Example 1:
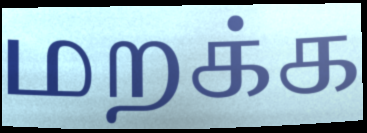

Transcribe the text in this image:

மறக்க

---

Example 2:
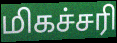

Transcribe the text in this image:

மிகச்சரி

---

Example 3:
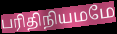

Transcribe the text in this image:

பரிதிநியமமே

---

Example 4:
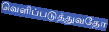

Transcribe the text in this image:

வெளிப்படுத்துவதோ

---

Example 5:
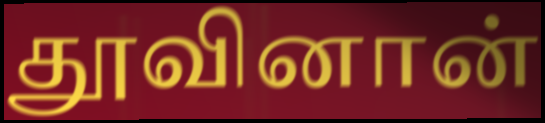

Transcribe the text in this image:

தூவினான்